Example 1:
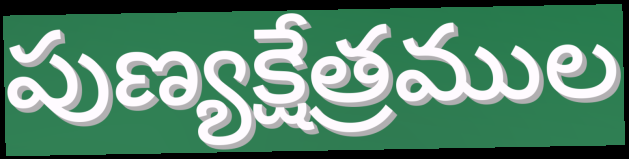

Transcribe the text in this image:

పుణ్యక్షేత్రముల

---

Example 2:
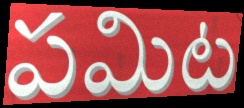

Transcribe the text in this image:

పమిట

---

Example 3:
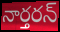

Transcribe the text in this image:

నార్తరన్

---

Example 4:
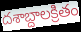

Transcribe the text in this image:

దశాబ్దాలక్రితం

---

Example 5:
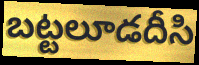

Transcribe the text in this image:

బట్టలూడదీసి